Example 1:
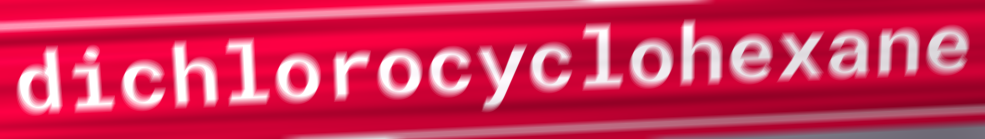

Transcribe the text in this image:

dichlorocyclohexane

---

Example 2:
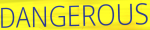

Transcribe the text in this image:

DANGEROUS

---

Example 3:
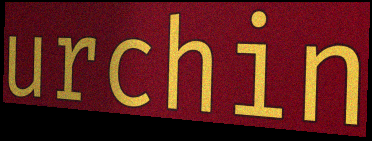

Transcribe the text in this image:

urchin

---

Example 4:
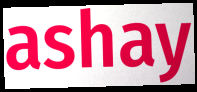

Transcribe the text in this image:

ashay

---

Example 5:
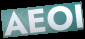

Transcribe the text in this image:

AEOI